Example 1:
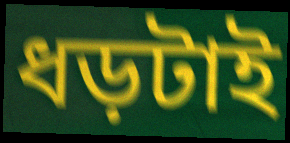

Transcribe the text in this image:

ধড়টাই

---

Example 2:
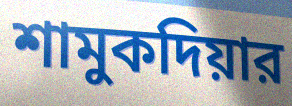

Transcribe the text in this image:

শামুকদিয়ার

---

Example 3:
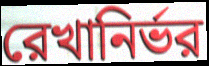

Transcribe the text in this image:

রেখানির্ভর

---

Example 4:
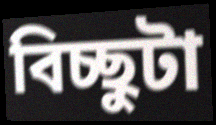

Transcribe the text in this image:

বিচ্ছুটা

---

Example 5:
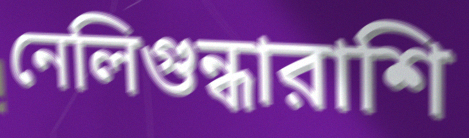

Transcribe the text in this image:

নেলিগুন্ধারাশি